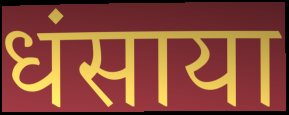
धंसाया